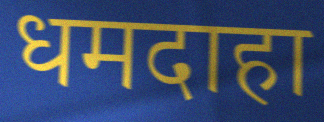
धमदाहा